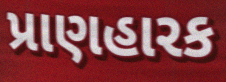
પ્રાણહારક